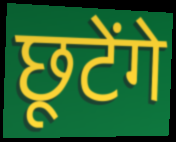
छूटेंगे